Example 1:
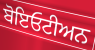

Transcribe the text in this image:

ਬੋਇਓਟੀਅਨ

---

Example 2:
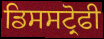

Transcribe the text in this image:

ਡਿਸਸਟ੍ਰੋਫੀ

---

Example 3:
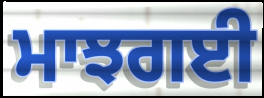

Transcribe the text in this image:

ਮਾਝਗਈ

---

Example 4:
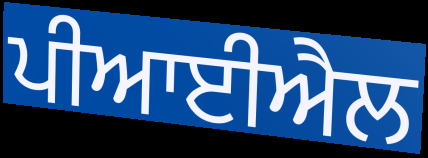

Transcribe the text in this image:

ਪੀਆਈਐਲ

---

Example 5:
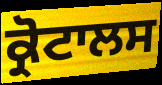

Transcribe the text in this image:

ਕ੍ਰੋਟਾਲਸ